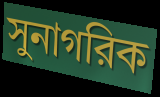
সুনাগরিক